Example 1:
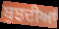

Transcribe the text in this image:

ਬੁਝਦੀਆਂ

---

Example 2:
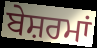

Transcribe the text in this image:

ਬੇਸ਼ਰਮਾਂ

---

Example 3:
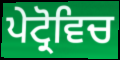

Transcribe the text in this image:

ਪੇਟ੍ਰੋਵਿਚ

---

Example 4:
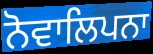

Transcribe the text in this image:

ਨੋਵਾਲਿਪਨਾ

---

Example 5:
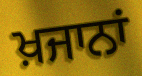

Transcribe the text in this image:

ਖ਼ਜਾਨਾਂ